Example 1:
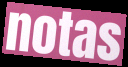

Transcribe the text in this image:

notas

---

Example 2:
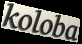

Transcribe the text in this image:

koloba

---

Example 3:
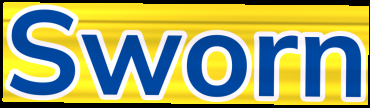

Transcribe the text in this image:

Sworn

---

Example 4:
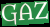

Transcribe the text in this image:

GAZ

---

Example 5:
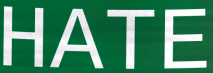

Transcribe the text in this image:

HATE